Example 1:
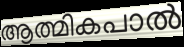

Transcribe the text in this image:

ആത്മികപാൽ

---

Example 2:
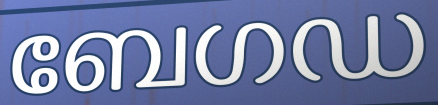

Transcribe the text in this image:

ബേഗഡ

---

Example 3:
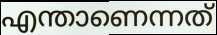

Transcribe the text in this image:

എന്താണെന്നത്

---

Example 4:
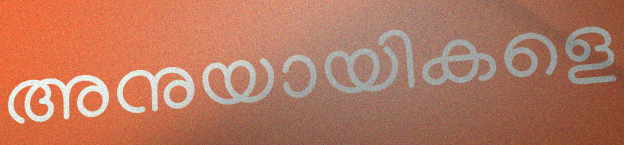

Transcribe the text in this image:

അനുയായികളെ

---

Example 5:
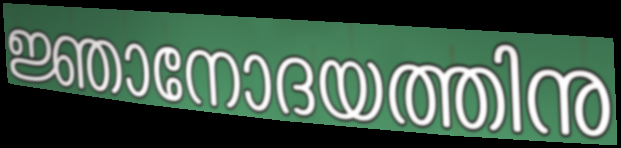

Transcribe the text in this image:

ജ്ഞാനോദയത്തിനു